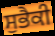
ਸੁਭੈਕੀ